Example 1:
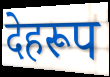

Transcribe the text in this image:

देहरूप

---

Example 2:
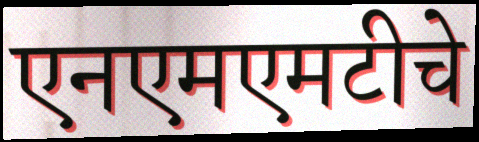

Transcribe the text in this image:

एनएमएमटीचे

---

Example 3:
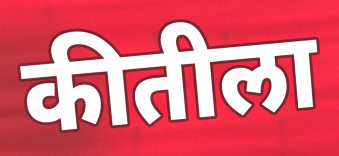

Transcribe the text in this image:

कीतीला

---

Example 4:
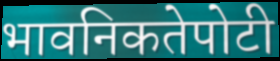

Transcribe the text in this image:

भावनिकतेपोटी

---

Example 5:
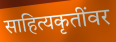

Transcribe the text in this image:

साहित्यकृतींवर